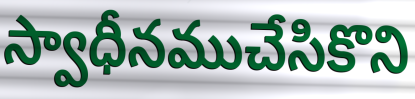
స్వాధీనముచేసికొని